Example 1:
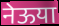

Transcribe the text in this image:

नेऊया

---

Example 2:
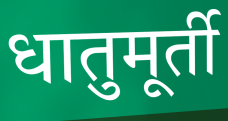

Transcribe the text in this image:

धातुमूर्ती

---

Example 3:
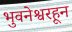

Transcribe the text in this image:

भुवनेश्वरहून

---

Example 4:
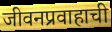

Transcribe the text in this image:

जीवनप्रवाहाची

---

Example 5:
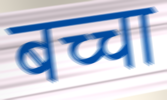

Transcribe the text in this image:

बच्चा